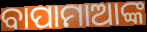
ବାପାମାଆଙ୍କ